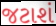
જટાશં